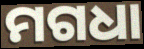
ମଗଧା